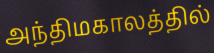
அந்திமகாலத்தில்